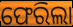
ଫେରିଲା